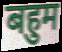
बहुम